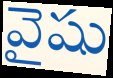
వైషు